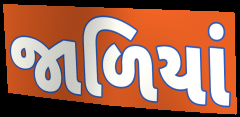
જાળિયાં